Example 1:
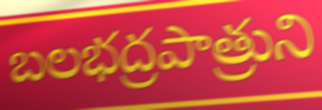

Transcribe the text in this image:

బలభద్రపాత్రుని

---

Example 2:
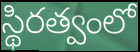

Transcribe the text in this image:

స్థిరత్వంలో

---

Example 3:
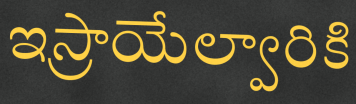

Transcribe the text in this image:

ఇస్రాయేల్వారికి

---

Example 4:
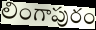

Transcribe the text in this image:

లింగాపురం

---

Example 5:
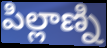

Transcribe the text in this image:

పిల్లాణ్ని